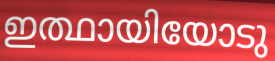
ഇത്ഥായിയോടു